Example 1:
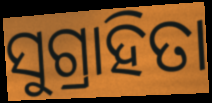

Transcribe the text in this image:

ସୁଗ୍ରାହିତା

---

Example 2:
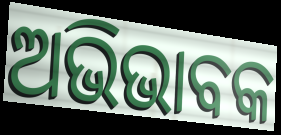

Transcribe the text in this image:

ଅଭିଭାବକ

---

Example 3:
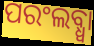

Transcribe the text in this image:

ପରଂଲବ୍ଧ୍ଵା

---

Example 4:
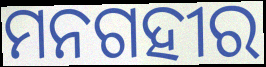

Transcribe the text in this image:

ମନଗହୀର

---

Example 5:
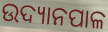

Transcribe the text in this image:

ଉଦ୍ୟାନପାଳ